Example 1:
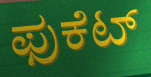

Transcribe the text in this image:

ಫುಕೆಟ್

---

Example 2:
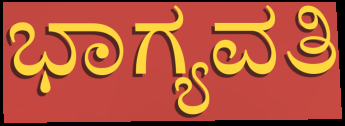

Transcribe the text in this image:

ಭಾಗ್ಯವತಿ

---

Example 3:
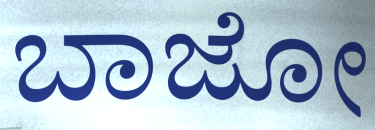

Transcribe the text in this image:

ಬಾಜೋ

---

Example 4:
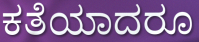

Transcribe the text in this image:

ಕತೆಯಾದರೂ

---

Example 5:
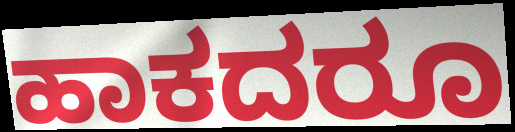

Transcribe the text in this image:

ಹಾಕದರೂ